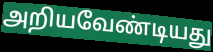
அறியவேண்டியது